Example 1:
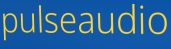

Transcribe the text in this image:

pulseaudio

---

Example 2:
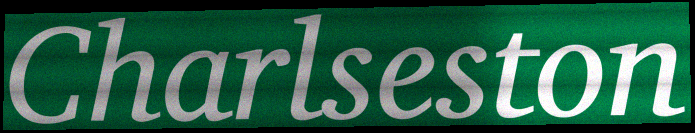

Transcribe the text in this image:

Charlseston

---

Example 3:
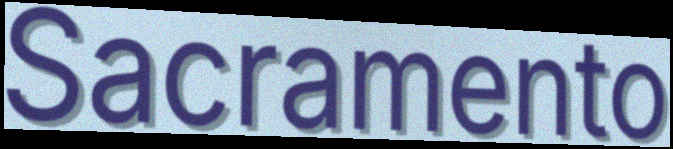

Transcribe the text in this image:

Sacramento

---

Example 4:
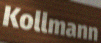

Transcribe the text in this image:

Kollmann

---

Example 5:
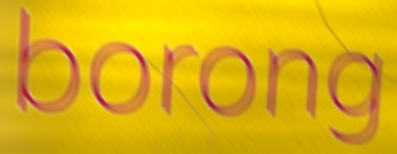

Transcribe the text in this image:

borong